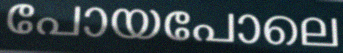
പോയപോലെ